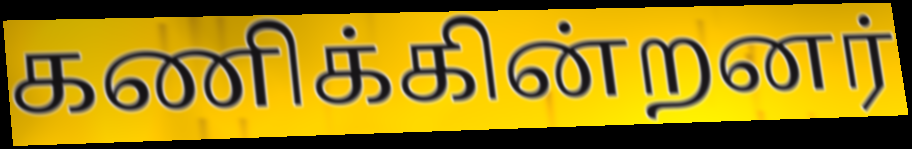
கணிக்கின்றனர்